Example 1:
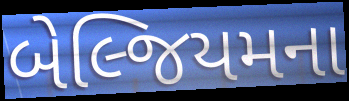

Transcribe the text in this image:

બેલ્જિયમના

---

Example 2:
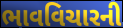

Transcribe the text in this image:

ભાવવિચારની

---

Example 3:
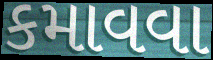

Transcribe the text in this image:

કમાવવા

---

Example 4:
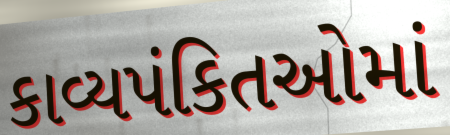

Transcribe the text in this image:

કાવ્યપંકિતઓમાં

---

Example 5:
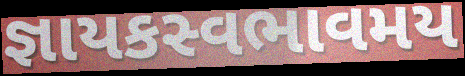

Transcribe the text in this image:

જ્ઞાયકસ્વભાવમય